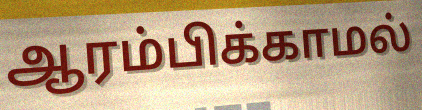
ஆரம்பிக்காமல்